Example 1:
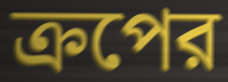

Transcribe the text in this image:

ক্রপের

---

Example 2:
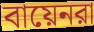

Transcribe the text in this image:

বায়েনরা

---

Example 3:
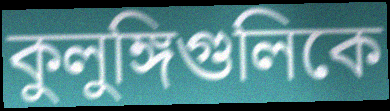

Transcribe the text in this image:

কুলুঙ্গিগুলিকে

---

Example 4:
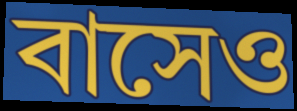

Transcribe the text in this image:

বাসেও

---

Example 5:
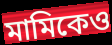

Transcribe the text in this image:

মামিকেও